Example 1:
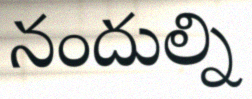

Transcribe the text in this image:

నందుల్ని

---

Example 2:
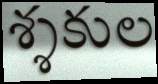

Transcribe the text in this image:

శ్శకుల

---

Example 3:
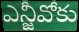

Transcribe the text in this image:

ఎన్జీవోకు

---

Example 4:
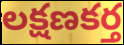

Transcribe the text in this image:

లక్షణకర్త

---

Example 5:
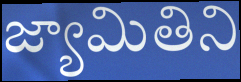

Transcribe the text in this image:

జ్యామితిని